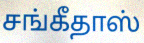
சங்கீதாஸ்